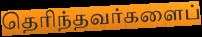
தெரிந்தவர்களைப்